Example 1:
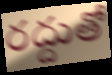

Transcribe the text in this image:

రద్దుతో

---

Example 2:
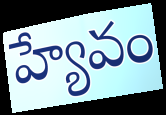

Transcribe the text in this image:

హ్యేవం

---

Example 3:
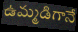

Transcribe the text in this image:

ఉమ్మడిగానే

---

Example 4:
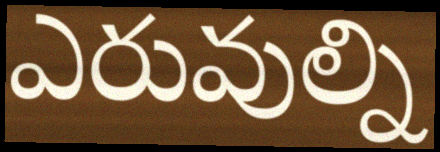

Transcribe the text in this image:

ఎరువుల్ని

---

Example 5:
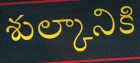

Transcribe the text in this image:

శుల్కానికి